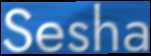
Sesha